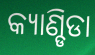
କ୍ୟାଣ୍ଡିଡା